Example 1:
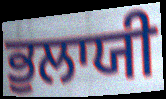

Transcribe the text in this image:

ਭੁਲਾਯੀ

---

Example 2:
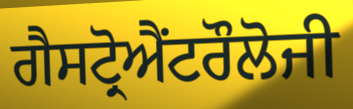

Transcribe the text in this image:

ਗੈਸਟ੍ਰੋਐਂਟਰੌਲੋਜੀ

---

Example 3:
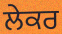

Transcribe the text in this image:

ਲੇਕਰ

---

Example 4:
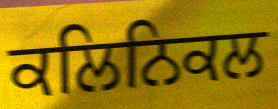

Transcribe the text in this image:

ਕਲਿਨਿਕਲ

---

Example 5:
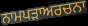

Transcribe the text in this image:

ਨਾਮਪੜਾਅਰਚਨਾ